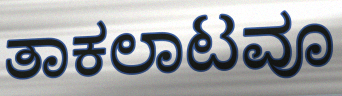
ತಾಕಲಾಟವೂ